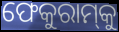
ଫେକୁରାମ୍‌କୁ